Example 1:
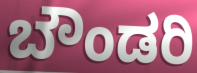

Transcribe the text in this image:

ಬೌಂಡರಿ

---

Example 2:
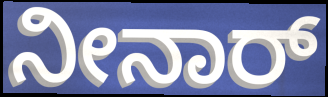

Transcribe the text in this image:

ನೀನಾರ್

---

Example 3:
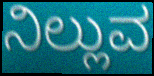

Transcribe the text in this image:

ನಿಲ್ಲುವ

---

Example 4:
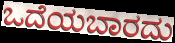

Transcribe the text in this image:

ಒದೆಯಬಾರದು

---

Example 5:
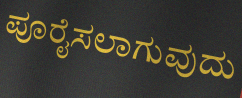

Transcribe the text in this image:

ಪೂರೈಸಲಾಗುವುದು